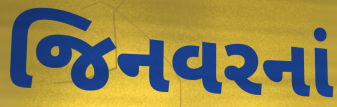
જિનવરનાં